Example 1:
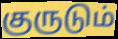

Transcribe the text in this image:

குருடும்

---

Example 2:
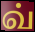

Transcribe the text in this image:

வ்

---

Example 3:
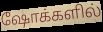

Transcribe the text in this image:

ஷோக்களில்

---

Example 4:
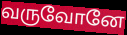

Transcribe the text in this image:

வருவோனே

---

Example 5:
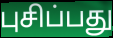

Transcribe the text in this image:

புசிப்பது